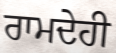
ਰਾਮਦੇਹੀ